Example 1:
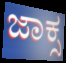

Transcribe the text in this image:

ಜಾಕ್ಸ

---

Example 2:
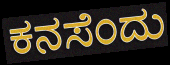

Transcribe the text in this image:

ಕನಸೆಂದು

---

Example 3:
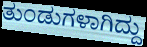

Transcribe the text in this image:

ತುಂಡುಗಳಾಗಿದ್ದು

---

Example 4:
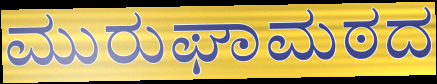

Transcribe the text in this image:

ಮುರುಘಾಮಠದ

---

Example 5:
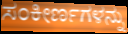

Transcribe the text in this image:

ಸಂಕೀರ್ಣಗಳನ್ನು